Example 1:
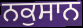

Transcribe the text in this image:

ਨਕੁਸਾਨ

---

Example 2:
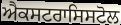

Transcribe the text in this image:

ਐਕਸਟਰਾਸਿਸਟੋਲ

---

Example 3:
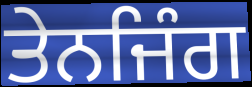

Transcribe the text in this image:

ਤੇਨਜਿੰਗ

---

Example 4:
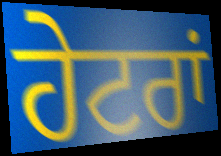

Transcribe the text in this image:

ਹੇਟਰਾਂ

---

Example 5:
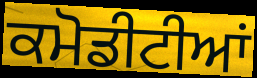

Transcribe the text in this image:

ਕਮੋਡੀਟੀਆਂ